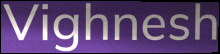
Vighnesh